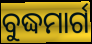
ବୁଦ୍ଧମାର୍ଗ